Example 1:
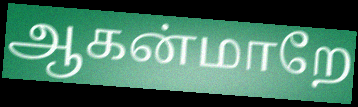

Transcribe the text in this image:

ஆகன்மாறே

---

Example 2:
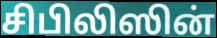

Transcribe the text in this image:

சிபிலிஸின்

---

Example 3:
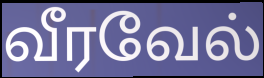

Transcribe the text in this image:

வீரவேல்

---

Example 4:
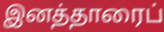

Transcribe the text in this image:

இனத்தாரைப்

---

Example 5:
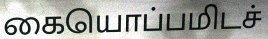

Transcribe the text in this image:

கையொப்பமிடச்